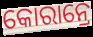
କୋରାନ୍ରେ